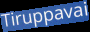
Tiruppavai